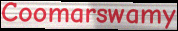
Coomarswamy